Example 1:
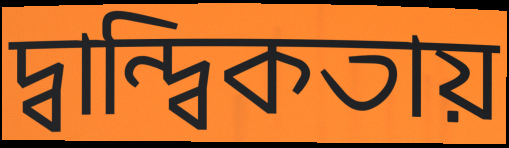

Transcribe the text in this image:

দ্বান্দ্বিকতায়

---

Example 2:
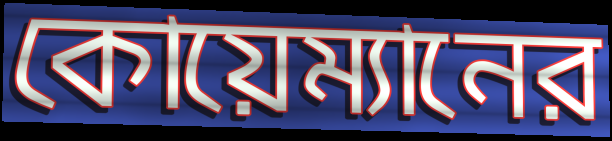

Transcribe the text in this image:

কোয়েম্যানের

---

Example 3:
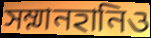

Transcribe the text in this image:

সম্মানহানিও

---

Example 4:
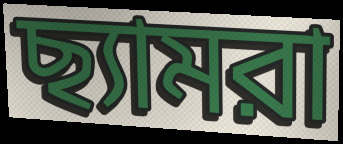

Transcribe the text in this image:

ছ্যামরা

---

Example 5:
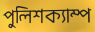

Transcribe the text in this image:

পুলিশক্যাম্প